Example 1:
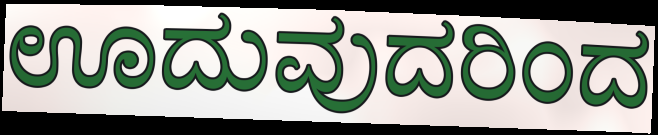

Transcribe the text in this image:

ಊದುವುದರಿಂದ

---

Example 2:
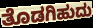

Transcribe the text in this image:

ತೊಡಗಿಹುದು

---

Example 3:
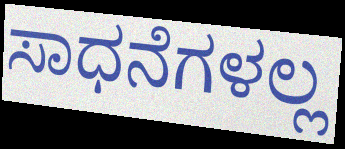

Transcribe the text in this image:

ಸಾಧನೆಗಳಲ್ಲ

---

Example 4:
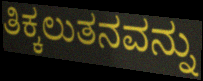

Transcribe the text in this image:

ತಿಕ್ಕಲುತನವನ್ನು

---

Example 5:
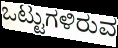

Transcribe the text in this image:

ಒಟ್ಟುಗಳಿರುವ